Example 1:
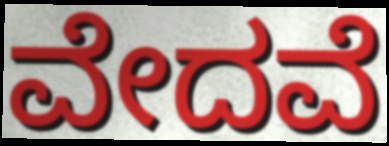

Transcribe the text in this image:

ವೇದವೆ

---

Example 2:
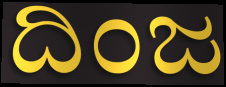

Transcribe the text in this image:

ದಿಂಜ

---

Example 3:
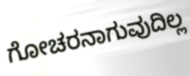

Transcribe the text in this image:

ಗೋಚರನಾಗುವುದಿಲ್ಲ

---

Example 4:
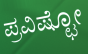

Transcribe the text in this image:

ಪ್ರವಿಷ್ಟೋ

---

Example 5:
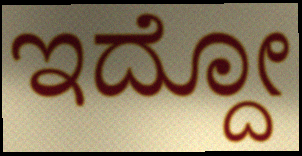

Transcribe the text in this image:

ಇದ್ದೋ